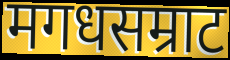
मगधसम्राट